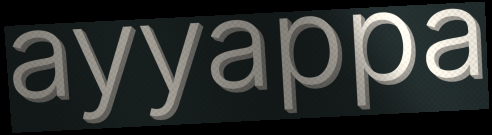
ayyappa